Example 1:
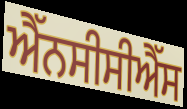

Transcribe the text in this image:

ਐੱਨਸੀਸੀਐੱਸ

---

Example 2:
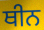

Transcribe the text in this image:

ਥੀਨ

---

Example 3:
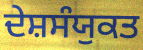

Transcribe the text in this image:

ਦੇਸ਼ਸੰਯੁਕਤ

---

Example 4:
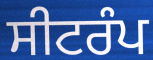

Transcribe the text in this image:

ਸੀਟਰੰਪ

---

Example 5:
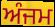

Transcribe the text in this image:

ਅੰਜਮ